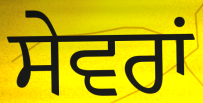
ਸੇਵਰਾਂ